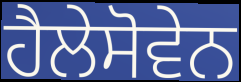
ਹੈਲੇਸੋਵੇਨ